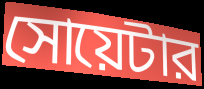
সোয়েটার